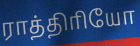
ராத்திரியோ